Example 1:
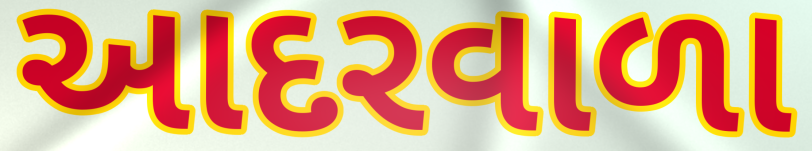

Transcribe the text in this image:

આદરવાળા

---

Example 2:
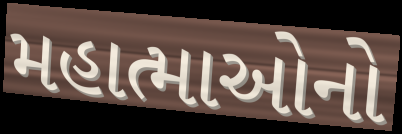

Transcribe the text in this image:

મહાત્માઓનો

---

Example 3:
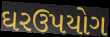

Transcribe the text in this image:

ઘરઉપયોગ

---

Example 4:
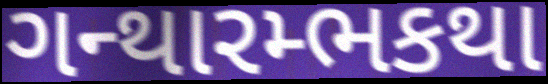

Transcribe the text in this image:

ગન્થારમ્ભકથા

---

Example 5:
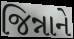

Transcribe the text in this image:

જિન્નાને